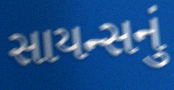
સાયન્સનું